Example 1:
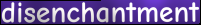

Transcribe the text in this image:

disenchantment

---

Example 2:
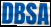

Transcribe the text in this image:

DBSA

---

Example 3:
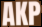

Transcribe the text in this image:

AKP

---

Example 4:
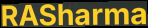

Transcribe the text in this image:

RASharma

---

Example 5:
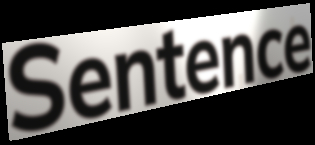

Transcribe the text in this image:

Sentence